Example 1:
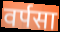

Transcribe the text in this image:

वर्पसा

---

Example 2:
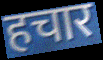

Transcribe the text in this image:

हचार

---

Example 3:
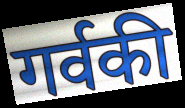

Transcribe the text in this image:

गर्वकी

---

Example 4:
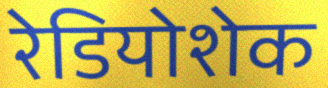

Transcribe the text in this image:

रेडियोशेक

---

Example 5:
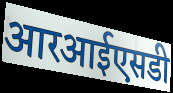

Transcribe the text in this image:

आरआईएसडी